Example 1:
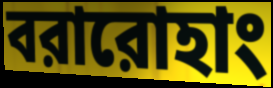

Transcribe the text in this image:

বরারোহাং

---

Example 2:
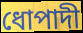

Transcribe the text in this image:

ধোপাদী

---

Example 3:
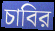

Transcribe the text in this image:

চাবির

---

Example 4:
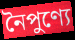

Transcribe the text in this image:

নৈপুণ্যে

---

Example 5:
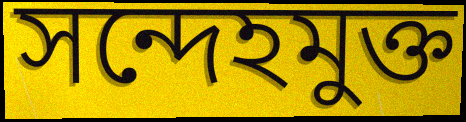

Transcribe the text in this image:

সন্দেহমুক্ত